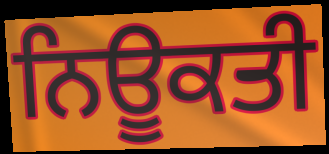
ਨਿਊਕਤੀ